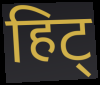
हिट्